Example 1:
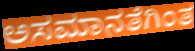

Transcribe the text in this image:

ಅಸಮಾನತೆಗಿಂತ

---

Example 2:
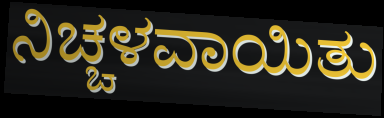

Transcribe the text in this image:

ನಿಚ್ಚಳವಾಯಿತು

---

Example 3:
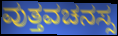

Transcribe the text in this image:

ವುತ್ತವಚನಸ್ಸ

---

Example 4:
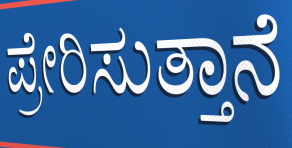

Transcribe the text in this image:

ಪ್ರೇರಿಸುತ್ತಾನೆ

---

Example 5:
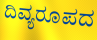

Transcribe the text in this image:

ದಿವ್ಯರೂಪದ